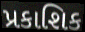
પ્રકાશિક